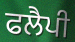
ਫਲੈਪੀ